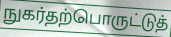
நுகர்தற்பொருட்டுத்